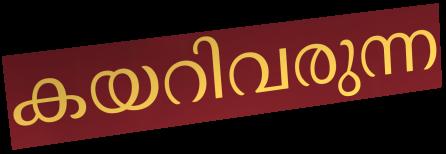
കയറിവരുന്ന